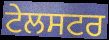
ਟੇਲਸਟਰ